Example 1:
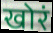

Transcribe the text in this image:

खोरं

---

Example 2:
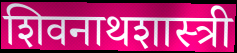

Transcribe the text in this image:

शिवनाथशास्त्री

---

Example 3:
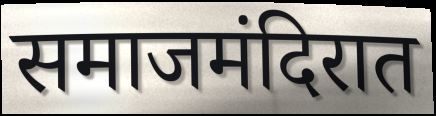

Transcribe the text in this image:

समाजमंदिरात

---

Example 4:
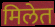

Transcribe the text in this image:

मिलेत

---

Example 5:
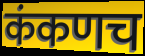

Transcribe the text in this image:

कंकणच